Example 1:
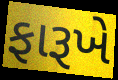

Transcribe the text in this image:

ફારૂખે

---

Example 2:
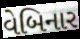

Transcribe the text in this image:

વેબિનાર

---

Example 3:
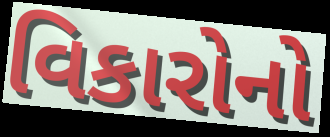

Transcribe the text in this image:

વિકારોનો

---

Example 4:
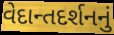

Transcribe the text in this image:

વેદાન્તદર્શનનું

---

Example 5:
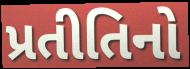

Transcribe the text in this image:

પ્રતીતિનો